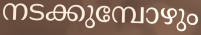
നടക്കുമ്പോഴും